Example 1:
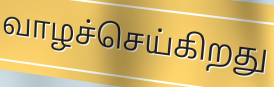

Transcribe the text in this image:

வாழச்செய்கிறது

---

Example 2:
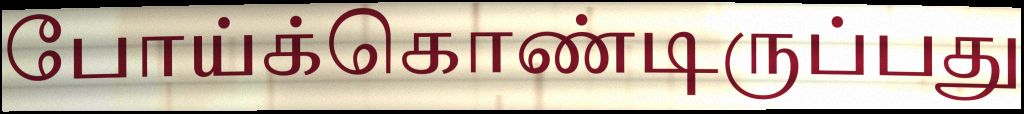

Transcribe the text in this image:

போய்க்கொண்டிருப்பது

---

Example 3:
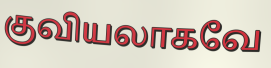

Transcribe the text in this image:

குவியலாகவே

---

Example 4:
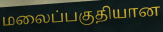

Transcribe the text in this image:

மலைப்பகுதியான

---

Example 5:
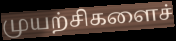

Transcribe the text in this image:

முயற்சிகளைச்